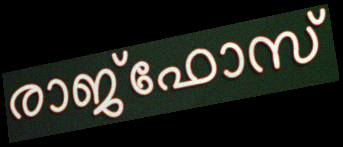
രാജ്ഫോസ്